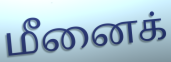
மீனைக்